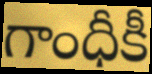
గాంధీకీ